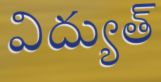
విద్యుత్